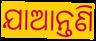
ଯାଆନ୍ତଣି